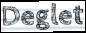
Deglet